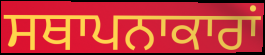
ਸਥਾਪਨਾਕਾਰਾਂ